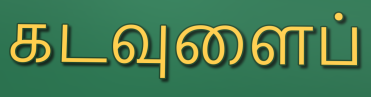
கடவுளைப்